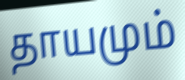
தாயமும்